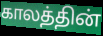
காலத்தின்